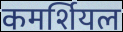
कमर्शियल